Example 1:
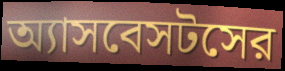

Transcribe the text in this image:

অ্যাসবেসটসের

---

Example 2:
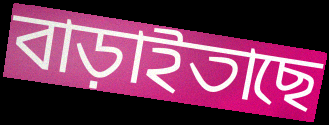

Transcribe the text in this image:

বাড়াইতাছে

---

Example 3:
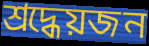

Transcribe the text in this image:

শ্রদ্ধেয়জন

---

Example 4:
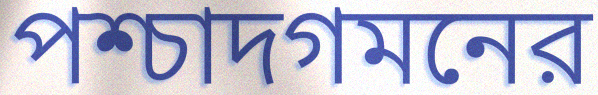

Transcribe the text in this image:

পশ্চাদগমনের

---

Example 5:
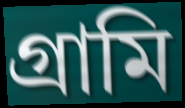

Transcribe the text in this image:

গ্রামি